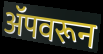
ॲपवरून